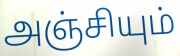
அஞ்சியும்